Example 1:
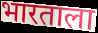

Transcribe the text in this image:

भारताला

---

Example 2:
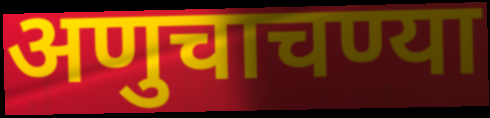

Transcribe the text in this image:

अणुचाचण्या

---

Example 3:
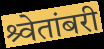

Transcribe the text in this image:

श्र्वेतांबरी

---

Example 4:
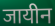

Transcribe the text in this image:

जायीन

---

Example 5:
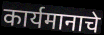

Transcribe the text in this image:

कार्यमानाचे